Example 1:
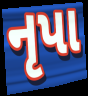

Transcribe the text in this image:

નૃપા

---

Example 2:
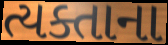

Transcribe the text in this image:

ત્યક્તાના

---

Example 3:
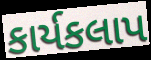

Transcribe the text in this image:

કાર્યકલાપ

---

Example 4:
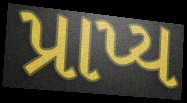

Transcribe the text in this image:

પ્રાપ્ય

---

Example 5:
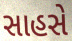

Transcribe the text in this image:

સાહસે